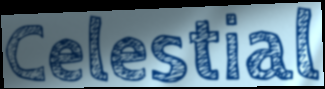
Celestial